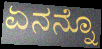
ಏನನ್ನೊ